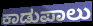
ಕಾಡುಪಾಲು